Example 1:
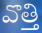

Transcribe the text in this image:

వొత్తి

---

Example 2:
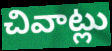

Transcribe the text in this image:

చివాట్లు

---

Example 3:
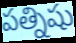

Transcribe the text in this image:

పత్నిషు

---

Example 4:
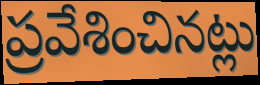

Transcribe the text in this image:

ప్రవేశించినట్లు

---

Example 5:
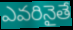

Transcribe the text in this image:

ఎవరినైతే